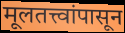
मूलतत्त्वांपासून